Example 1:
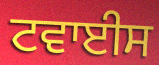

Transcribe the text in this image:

ਟਵਾਈਸ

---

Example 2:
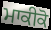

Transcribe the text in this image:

ਮਾਕੀਕੋ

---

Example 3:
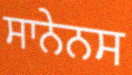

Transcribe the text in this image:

ਸਾਨੇਨਸ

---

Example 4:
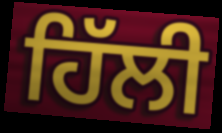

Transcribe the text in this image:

ਹਿੱਲੀ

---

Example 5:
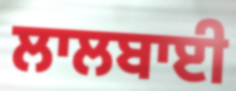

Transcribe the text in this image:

ਲਾਲਬਾਈ